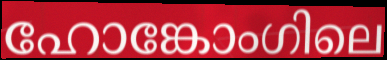
ഹോങ്കോംഗിലെ